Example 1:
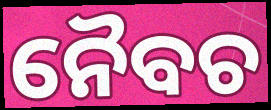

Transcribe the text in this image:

ନୈବଚ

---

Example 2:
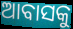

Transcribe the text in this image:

ଆବାସକୁ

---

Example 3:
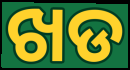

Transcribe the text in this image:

ଖଡ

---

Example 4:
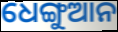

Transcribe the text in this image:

ଧେଙ୍ଗୁଆନ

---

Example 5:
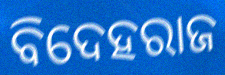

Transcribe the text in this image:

ବିଦେହରାଜ